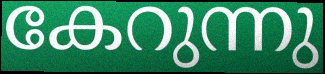
കേറുന്നു